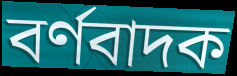
বৰ্ণবাদক